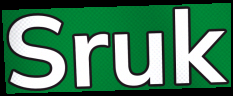
Sruk